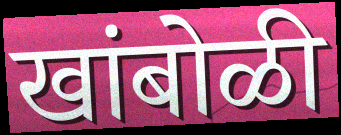
खांबोळी